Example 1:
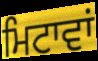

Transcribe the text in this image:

ਮਿਟਾਵਾਂ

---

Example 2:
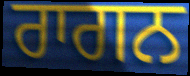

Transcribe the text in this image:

ਰਾਗਨ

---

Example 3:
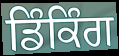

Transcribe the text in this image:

ਡਿੰਕਿੰਗ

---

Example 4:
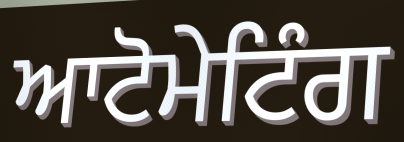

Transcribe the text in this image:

ਆਟੋਮੇਟਿੰਗ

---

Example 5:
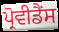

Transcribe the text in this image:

ਪ੍ਰੋਵੀਡੈਂਸ